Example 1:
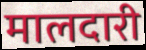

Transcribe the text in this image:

मालदारी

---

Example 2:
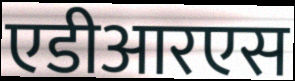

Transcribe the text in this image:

एडीआरएस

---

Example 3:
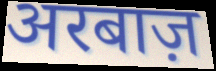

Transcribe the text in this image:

अरबाज़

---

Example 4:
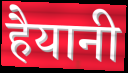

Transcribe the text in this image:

हैयानी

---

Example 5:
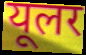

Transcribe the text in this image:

यूलर